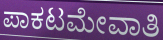
ಪಾಕಟಮೇವಾತಿ